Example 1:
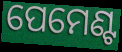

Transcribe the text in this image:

ପେମେଣ୍ଟ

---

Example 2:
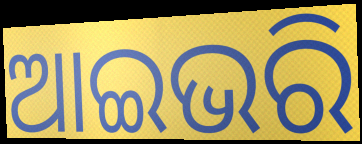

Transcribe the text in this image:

ଆଇଭରି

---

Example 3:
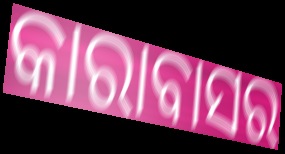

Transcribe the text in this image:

କାରାବାସର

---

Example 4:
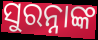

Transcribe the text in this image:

ସୁରନ୍ନାଙ୍କ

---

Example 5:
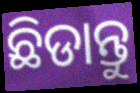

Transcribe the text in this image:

ଛିଡାନ୍ତୁ